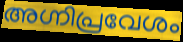
അഗ്നിപ്രവേശം